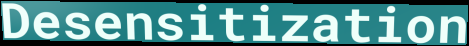
Desensitization